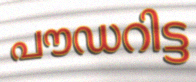
പൗഡറിട്ട